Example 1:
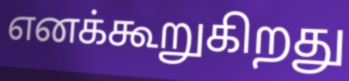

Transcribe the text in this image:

எனக்கூறுகிறது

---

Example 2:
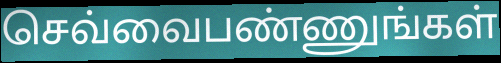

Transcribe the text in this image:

செவ்வைபண்ணுங்கள்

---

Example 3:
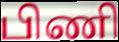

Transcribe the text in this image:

பிணி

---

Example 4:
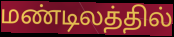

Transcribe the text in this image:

மண்டிலத்தில்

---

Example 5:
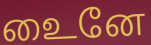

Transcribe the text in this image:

உைனே